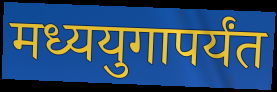
मध्ययुगापर्यंत